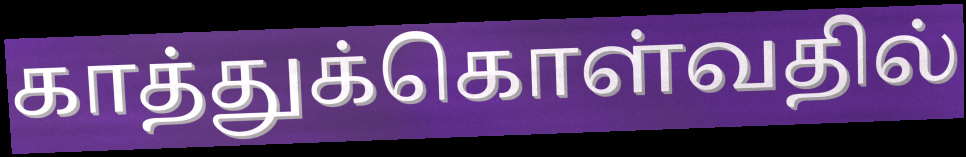
காத்துக்கொள்வதில்